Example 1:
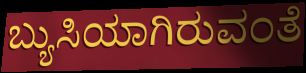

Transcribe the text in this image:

ಬ್ಯುಸಿಯಾಗಿರುವಂತೆ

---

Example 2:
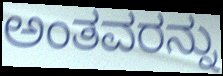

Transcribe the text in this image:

ಅಂತವರನ್ನು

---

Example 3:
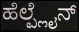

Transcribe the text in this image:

ಹೆಲ್ಪ್ಲೈನ್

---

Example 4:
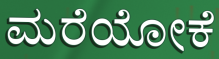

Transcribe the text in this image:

ಮರೆಯೋಕೆ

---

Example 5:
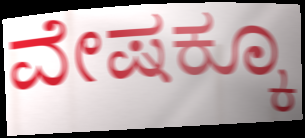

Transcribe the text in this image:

ವೇಷಕ್ಕೂ